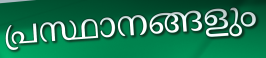
പ്രസ്ഥാനങ്ങളും